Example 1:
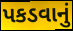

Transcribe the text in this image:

પકડવાનું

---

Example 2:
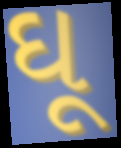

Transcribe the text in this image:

ઘૂ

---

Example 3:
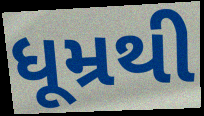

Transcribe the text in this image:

ધૂમ્રથી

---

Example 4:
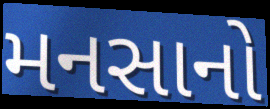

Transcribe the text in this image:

મનસાનો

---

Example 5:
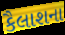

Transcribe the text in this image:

કૈલાશના